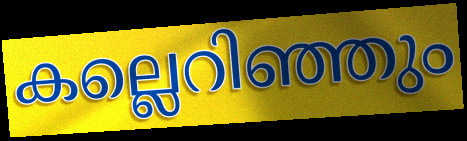
കല്ലെറിഞ്ഞും